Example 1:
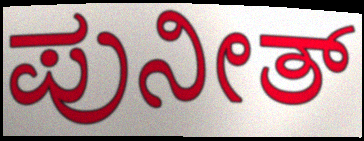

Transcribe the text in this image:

ಪುನೀತ್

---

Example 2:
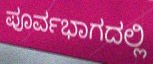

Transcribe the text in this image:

ಪೂರ್ವಭಾಗದಲ್ಲಿ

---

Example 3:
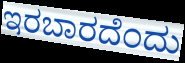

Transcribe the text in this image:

ಇರಬಾರದೆಂದು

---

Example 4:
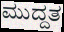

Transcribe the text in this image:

ಮುದ್ದತ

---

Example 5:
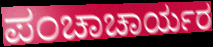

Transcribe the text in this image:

ಪಂಚಾಚಾರ್ಯರ